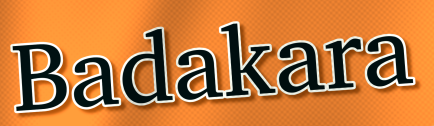
Badakara